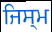
ਜਿਸ੍ਮ